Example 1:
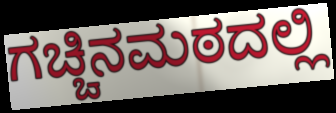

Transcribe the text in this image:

ಗಚ್ಚಿನಮಠದಲ್ಲಿ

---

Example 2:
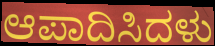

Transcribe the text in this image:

ಆಪಾದಿಸಿದಳು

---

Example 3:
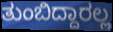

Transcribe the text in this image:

ತುಂಬಿದ್ದಾರಲ್ಲ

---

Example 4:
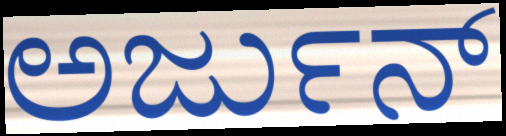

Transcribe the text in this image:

ಅರ್ಜುನ್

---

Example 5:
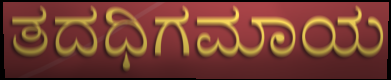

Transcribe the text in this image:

ತದಧಿಗಮಾಯ